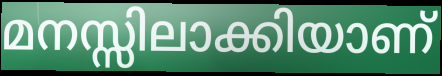
മനസ്സിലാക്കിയാണ്